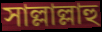
সাল্লাল্লাহু